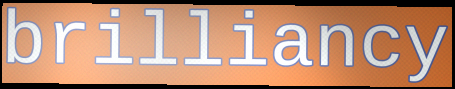
brilliancy